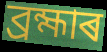
ব্ৰহ্মাৰ